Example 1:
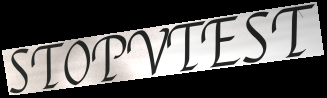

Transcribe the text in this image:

STOPVTEST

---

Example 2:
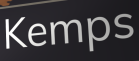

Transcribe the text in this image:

Kemps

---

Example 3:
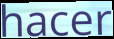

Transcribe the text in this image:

hacer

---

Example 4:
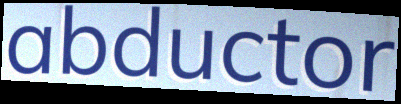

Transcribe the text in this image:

abductor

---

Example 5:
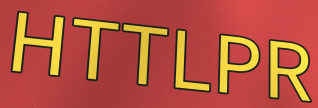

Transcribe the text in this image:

HTTLPR